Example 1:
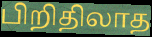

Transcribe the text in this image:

பிறிதிலாத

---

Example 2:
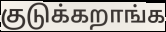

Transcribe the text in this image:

குடுக்கறாங்க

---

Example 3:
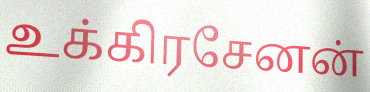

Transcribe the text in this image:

உக்கிரசேனன்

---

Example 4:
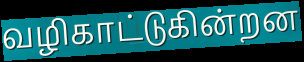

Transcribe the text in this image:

வழிகாட்டுகின்றன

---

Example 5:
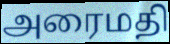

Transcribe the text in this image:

அரைமதி